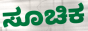
ಸೂಚಿಕ